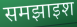
समझाइश